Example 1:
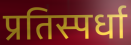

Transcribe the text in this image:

प्रतिस्पर्धा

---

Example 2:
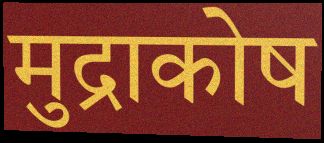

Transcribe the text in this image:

मुद्राकोष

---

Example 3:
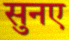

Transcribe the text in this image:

सुनए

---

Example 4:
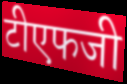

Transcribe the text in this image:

टीएफजी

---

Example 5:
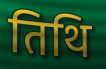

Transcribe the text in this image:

तिथि